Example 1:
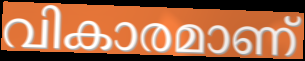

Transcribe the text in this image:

വികാരമാണ്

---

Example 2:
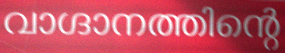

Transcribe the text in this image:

വാഗ്ദാനത്തിന്റെ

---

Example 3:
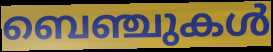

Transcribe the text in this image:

ബെഞ്ചുകൾ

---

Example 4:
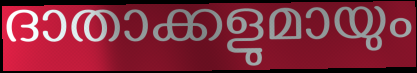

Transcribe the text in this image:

ദാതാക്കളുമായും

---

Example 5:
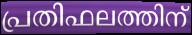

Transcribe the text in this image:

പ്രതിഫലത്തിന്